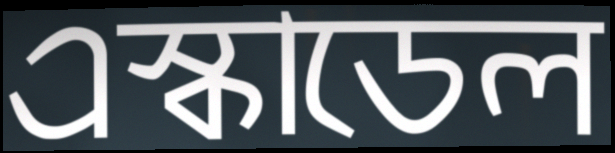
এস্কাডেল